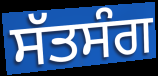
ਸੱਤਸੰਗ